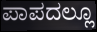
ಪಾಪದಲ್ಲೂ